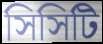
সিসিটি